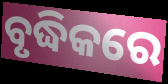
ବୃଦ୍ଧିକରେ